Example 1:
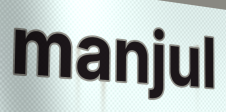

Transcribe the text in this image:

manjul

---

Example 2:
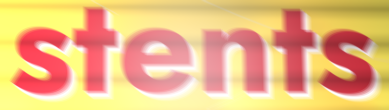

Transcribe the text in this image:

stents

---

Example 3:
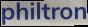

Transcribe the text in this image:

philtron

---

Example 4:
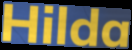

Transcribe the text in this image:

Hilda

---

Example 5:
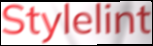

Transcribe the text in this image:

Stylelint